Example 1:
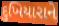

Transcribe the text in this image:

દુખિયારાને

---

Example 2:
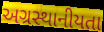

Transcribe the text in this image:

અગ્રસ્થાનીયતા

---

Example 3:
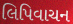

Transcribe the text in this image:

લિપિવાચન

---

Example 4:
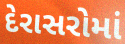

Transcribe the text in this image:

દેરાસરોમાં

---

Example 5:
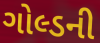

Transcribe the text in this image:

ગોલ્ડની